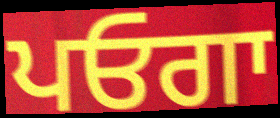
ਪਓਗਾ